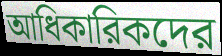
আধিকারিকদের